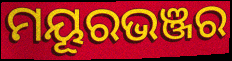
ମୟୂରଭଞ୍ଜର